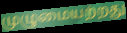
முழுமையற்றது